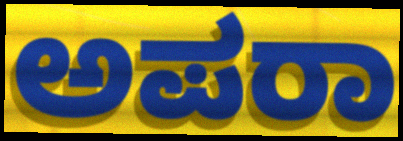
ಅಪರಾ